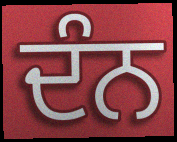
ਦੰਨ